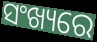
ସଂଖ୍ୟରେ